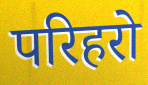
परिहरो